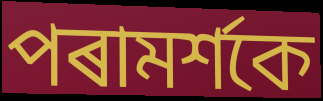
পৰামৰ্শকে